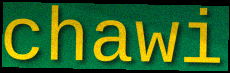
chawi